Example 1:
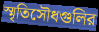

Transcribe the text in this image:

স্মৃতিসৌধগুলির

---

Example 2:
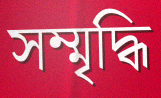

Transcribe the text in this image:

সম্মৃদ্ধি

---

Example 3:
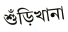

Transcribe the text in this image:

শুঁড়িখানা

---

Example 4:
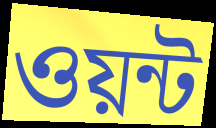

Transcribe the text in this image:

ওয়ন্ট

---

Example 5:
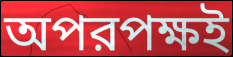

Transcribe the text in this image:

অপরপক্ষই